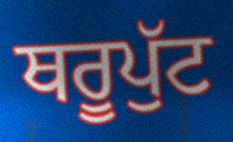
ਥਰੂਪੁੱਟ